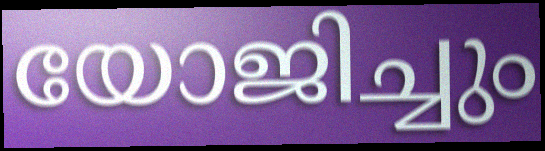
യോജിച്ചും